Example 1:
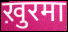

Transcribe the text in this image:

ख़ुरमा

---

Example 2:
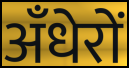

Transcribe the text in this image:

अँधेरों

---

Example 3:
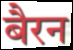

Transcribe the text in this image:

बैरन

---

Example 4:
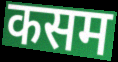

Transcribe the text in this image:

कसम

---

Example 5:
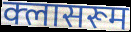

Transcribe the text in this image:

क्‍लासरूम